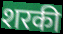
शरकी